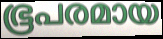
ഭൂപരമായ